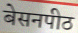
बेसनपीठ